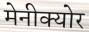
मेनीक्योर